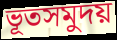
ভূতসমুদয়